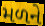
મળને